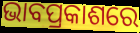
ଭାବପ୍ରକାଶରେ